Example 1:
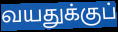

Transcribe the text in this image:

வயதுக்குப்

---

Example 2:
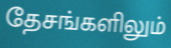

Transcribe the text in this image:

தேசங்களிலும்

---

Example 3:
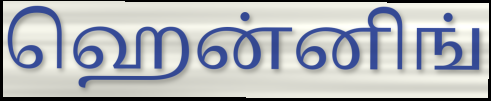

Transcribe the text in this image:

ஹென்னிங்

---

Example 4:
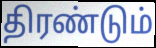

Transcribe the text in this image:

திரண்டும்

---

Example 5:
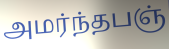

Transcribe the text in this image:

அமர்ந்தபஞ்